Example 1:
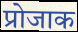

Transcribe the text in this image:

प्रोजाक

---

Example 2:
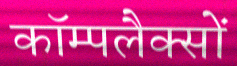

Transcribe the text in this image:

कॉम्पलैक्सों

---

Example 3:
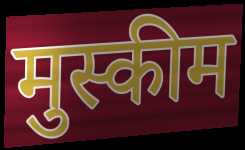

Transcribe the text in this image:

मुस्कीम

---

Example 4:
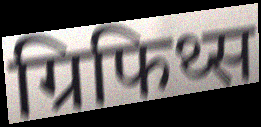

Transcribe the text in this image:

ग्रिफिथ्स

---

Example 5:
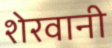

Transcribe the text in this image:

शेरवानी